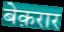
बेक़रार